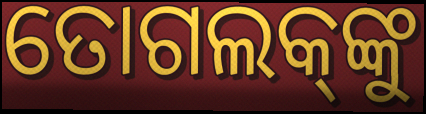
ତୋଗଲକ୍‌ଙ୍କୁ